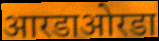
आरडाओरडा